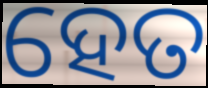
ହେତ